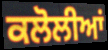
ਕਲੋਲੀਆਂ